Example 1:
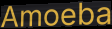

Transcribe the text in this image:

Amoeba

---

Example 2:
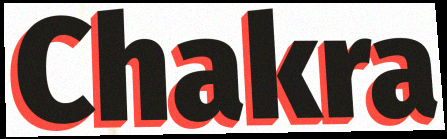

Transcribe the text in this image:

Chakra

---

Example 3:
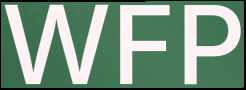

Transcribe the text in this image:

WFP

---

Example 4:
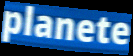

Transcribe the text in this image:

planete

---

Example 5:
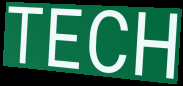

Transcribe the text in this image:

TECH